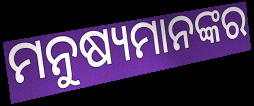
ମନୁଷ୍ୟମାନଙ୍କର